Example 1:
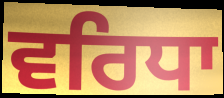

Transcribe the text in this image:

ਵਰਿਧਾ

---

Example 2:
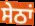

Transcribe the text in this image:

ਸੇਠਾਂ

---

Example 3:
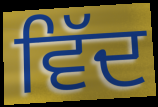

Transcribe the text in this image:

ਵਿੱਦ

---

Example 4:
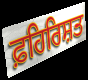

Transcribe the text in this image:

ਫ਼ਹਿਰਿਸ਼ਤ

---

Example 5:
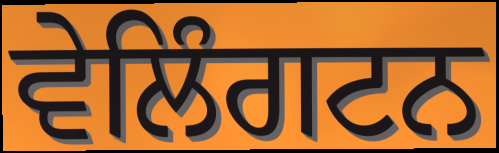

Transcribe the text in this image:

ਵੇਲਿੰਗਟਨ